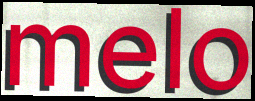
melo